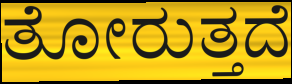
ತೋರುತ್ತದೆ